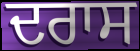
ਦਰਾਸ